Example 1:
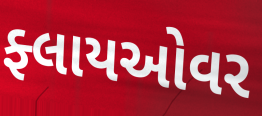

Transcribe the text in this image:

ફ્લાયઓવર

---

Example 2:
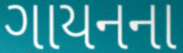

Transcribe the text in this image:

ગાયનના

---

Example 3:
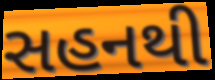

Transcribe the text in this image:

સહનથી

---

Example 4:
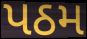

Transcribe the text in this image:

પઠમ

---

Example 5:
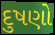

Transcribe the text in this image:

દુષણો